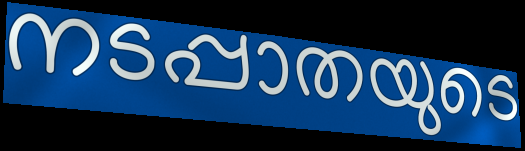
നടപ്പാതയുടെ